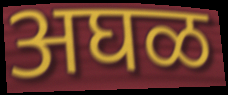
अघळ